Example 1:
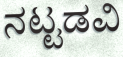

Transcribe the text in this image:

ನಟ್ಟಡವಿ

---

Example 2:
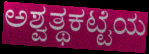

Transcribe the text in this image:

ಅಶ್ವತ್ಥಕಟ್ಟೆಯ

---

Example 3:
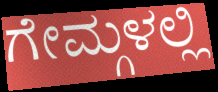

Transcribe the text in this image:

ಗೇಮ್ಗಳಲ್ಲಿ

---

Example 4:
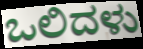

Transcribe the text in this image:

ಒಲಿದಳು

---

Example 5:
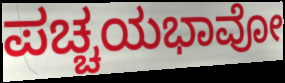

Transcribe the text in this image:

ಪಚ್ಚಯಭಾವೋ